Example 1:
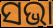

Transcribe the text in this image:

ସଭା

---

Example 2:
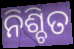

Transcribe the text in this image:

ନିଶ୍ଚିତ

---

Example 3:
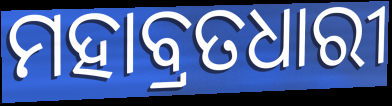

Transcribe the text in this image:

ମହାବ୍ରତଧାରୀ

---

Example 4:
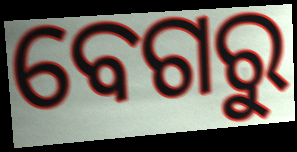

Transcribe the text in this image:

ବେଗରୁ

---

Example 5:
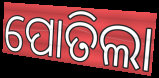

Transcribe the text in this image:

ପୋତିଲା